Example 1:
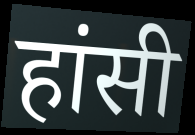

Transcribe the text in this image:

हांसी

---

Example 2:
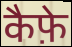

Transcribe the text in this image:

कैफ़े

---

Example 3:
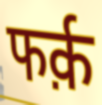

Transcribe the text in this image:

फर्क़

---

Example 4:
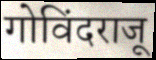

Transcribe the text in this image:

गोविंदराजू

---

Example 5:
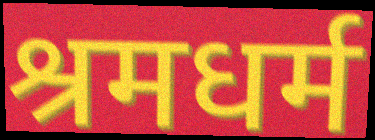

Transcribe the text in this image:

श्रमधर्म